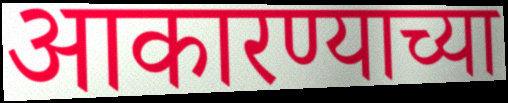
आकारण्याच्या